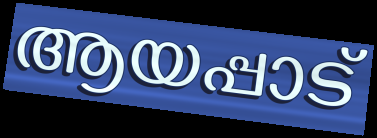
ആയപ്പാട്